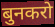
बुनकरो